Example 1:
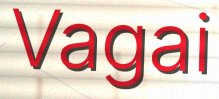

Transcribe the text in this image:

Vagai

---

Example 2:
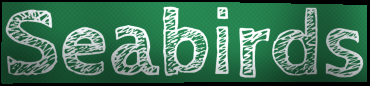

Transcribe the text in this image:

Seabirds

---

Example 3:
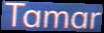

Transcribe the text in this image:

Tamar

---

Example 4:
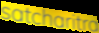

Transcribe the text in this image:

satcharitra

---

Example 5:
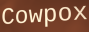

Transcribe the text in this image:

Cowpox